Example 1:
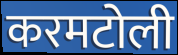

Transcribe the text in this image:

करमटोली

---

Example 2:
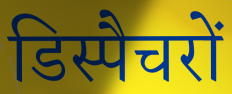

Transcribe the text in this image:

डिस्पैचरों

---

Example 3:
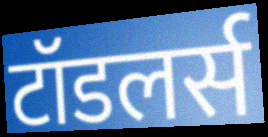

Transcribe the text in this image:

टॉडलर्स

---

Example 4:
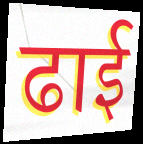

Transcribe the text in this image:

ढाई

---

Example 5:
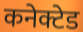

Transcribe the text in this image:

कनेक्टेड